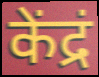
केंद्रं